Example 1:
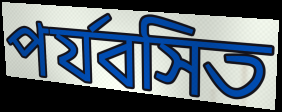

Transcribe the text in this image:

পৰ্যবসিত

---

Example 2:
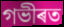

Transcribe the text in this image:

গভীৰত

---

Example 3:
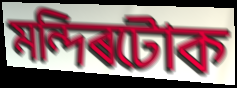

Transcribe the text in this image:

মন্দিৰটোক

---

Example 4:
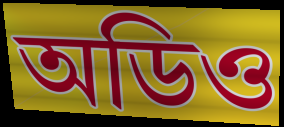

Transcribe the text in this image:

অডিও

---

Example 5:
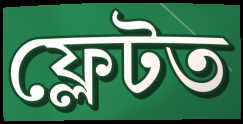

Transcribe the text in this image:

ফ্লেটত